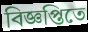
বিজ্ঞপ্তিতে